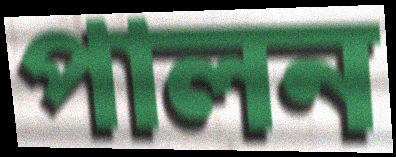
পালন